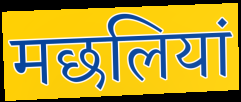
मछलियां